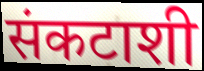
संकटाशी